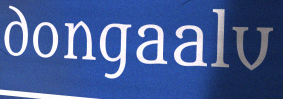
dongaalu